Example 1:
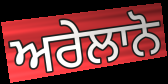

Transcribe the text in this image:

ਅਰੇਲਾਨੋ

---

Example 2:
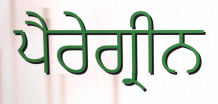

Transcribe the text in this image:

ਪੈਰੇਗ੍ਰੀਨ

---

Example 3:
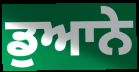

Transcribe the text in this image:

ਡੁਆਨੇ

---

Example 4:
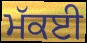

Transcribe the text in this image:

ਮੱਕਈ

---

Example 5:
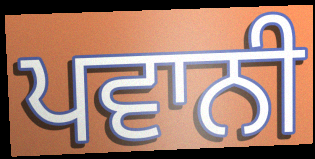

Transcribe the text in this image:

ਪਵਾਨੀ